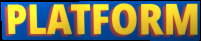
PLATFORM